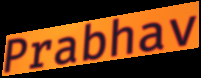
Prabhav